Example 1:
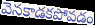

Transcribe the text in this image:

వెనకాడకపోవడం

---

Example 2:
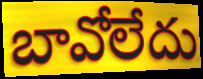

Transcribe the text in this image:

బావోలేదు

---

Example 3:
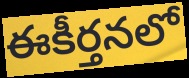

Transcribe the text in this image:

ఈకీర్తనలో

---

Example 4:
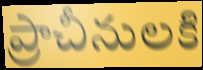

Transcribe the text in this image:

ప్రాచీనులకి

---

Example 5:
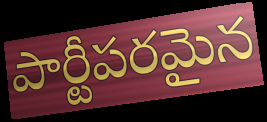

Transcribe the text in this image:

పార్టీపరమైన